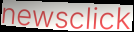
newsclick